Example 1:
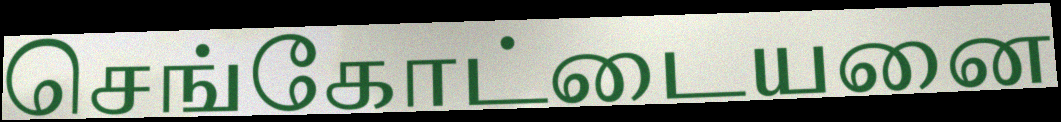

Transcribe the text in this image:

செங்கோட்டையனை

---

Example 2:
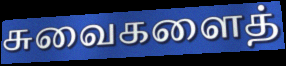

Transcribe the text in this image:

சுவைகளைத்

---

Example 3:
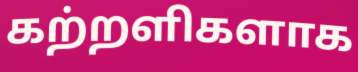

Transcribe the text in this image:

கற்றளிகளாக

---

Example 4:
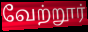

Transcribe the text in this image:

வேற்றூர்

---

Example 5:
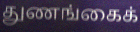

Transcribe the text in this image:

துணங்கைக்